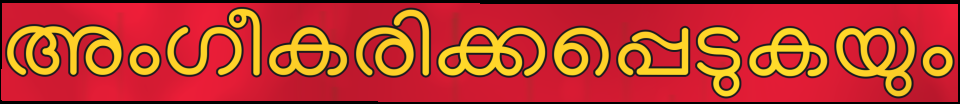
അംഗീകരിക്കപ്പെടുകയും